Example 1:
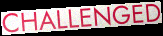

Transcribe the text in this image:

CHALLENGED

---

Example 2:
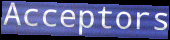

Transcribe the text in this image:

Acceptors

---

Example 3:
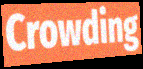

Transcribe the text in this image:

Crowding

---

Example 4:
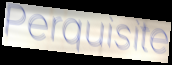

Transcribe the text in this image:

Perquisite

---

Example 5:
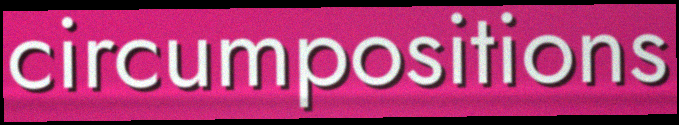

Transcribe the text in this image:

circumpositions